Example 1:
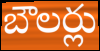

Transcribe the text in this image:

బౌలర్లు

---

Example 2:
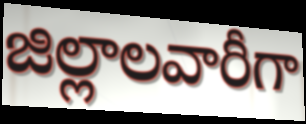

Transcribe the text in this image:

జిల్లాలవారీగా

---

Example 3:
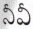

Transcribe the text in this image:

నీవీ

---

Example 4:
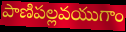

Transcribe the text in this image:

పాణిపల్లవయుగాం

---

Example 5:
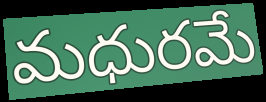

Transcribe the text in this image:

మధురమే